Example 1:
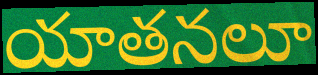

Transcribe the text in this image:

యాతనలూ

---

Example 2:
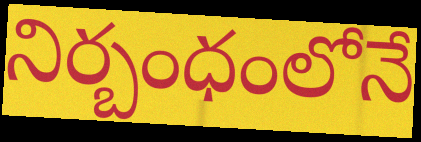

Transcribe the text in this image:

నిర్బంధంలోనే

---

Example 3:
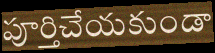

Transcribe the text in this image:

పూర్తిచేయకుండా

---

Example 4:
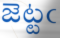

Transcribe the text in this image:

జెట్టఁ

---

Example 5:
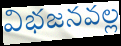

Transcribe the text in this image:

విభజనవల్ల